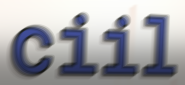
ciil